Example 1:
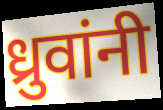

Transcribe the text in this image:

ध्रुवांनी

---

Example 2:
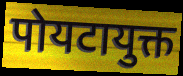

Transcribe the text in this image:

पोयटायुक्त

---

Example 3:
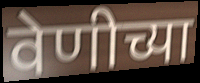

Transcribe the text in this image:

वेणीच्या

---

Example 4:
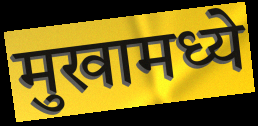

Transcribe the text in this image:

मुखामध्ये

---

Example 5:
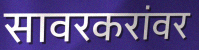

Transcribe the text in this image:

सावरकरांवर